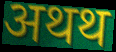
अथथ